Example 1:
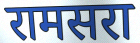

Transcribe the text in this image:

रामसरा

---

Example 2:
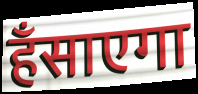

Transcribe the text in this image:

हँसाएगा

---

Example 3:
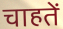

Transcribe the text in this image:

चाहतें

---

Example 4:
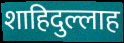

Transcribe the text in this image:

शाहिदुल्लाह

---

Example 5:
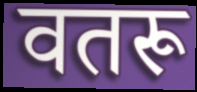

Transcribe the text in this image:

वतरू